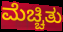
ಮೆಚ್ಚಿತು